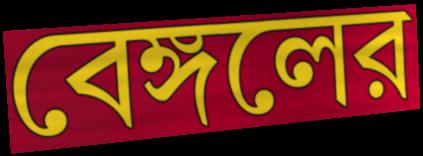
বেঙ্গলের